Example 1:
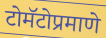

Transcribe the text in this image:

टोमॅटोप्रमाणे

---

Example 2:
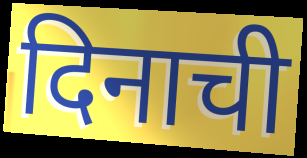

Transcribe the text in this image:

दिनाची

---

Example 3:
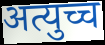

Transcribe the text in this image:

अत्युच्च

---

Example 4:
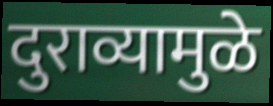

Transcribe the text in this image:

दुराव्यामुळे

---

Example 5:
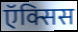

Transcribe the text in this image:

ऍक्सिस